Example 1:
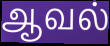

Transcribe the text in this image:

ஆவல்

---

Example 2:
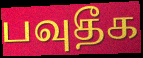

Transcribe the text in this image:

பவுதீக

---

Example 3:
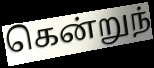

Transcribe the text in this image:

கென்றுந்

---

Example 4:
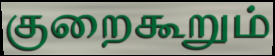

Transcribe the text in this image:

குறைகூறும்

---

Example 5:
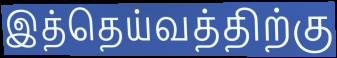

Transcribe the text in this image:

இத்தெய்வத்திற்கு